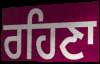
ਰਹਿਣਾ